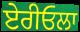
ਏਰੀਓਲਾ